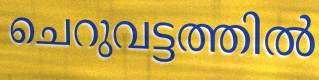
ചെറുവട്ടത്തിൽ